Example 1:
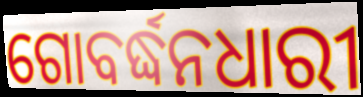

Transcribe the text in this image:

ଗୋବର୍ଦ୍ଧନଧାରୀ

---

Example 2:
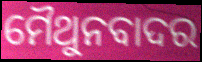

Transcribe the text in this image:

ମୈଥୁନବାଦର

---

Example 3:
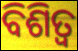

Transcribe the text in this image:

ବିଶିତ୍ଵ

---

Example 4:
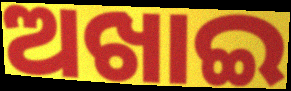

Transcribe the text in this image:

ଅଖାଇ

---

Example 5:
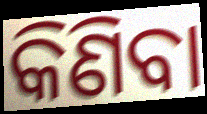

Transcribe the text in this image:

କିଣିବା